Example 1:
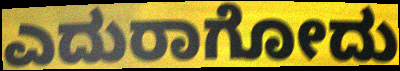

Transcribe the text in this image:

ಎದುರಾಗೋದು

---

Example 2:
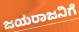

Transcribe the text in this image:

ಜಯರಾಜನಿಗೆ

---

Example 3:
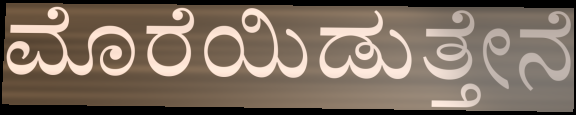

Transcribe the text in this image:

ಮೊರೆಯಿಡುತ್ತೇನೆ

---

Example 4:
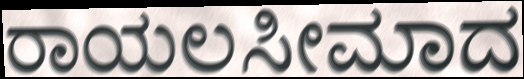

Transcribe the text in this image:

ರಾಯಲಸೀಮಾದ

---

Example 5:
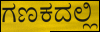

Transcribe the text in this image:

ಗಣಕದಲ್ಲಿ